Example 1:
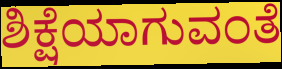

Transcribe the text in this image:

ಶಿಕ್ಷೆಯಾಗುವಂತೆ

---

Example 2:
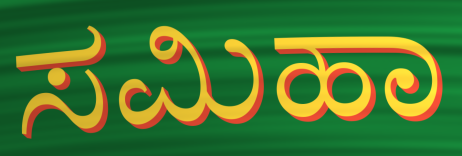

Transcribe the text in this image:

ಸಮಿಹಾ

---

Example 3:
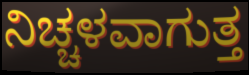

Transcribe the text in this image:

ನಿಚ್ಚಳವಾಗುತ್ತ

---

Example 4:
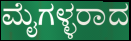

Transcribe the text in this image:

ಮೈಗಳ್ಳರಾದ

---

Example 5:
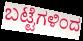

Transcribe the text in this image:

ಬಟ್ಟೆಗಳಿಂದ